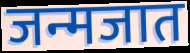
जन्मजात